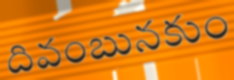
దివంబునకుం